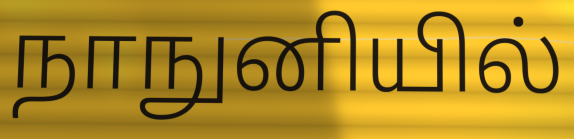
நாநுனியில்